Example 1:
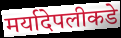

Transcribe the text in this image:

मर्यादेपलीकडे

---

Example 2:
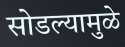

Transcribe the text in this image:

सोडल्यामुळे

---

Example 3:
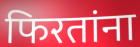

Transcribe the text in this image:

फिरतांना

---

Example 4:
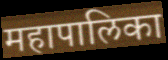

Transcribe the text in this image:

महापालिका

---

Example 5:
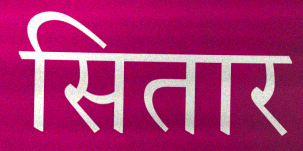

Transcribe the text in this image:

सितार